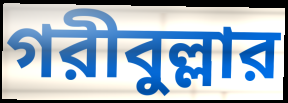
গরীবুল্লার